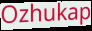
Ozhukap